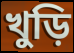
খুড়ি